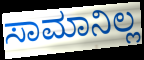
ಸಾಮಾನಿಲ್ಲ